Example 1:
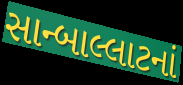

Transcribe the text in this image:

સાન્બાલ્લાટનાં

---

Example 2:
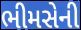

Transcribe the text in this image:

ભીમસેની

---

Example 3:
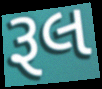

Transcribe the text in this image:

રૂલ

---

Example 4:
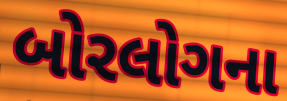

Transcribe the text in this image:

બોરલોગના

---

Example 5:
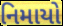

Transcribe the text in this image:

નિમાયો